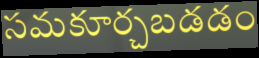
సమకూర్చబడడం